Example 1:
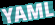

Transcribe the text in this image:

YAML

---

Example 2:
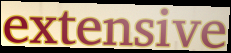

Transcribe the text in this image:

extensive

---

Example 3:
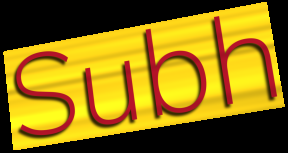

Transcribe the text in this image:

Subh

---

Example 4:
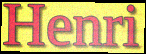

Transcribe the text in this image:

Henri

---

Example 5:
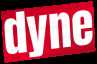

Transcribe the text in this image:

dyne